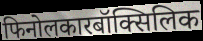
फिनोलकारबॉक्सिलिक